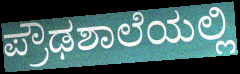
ಪ್ರೌಢಶಾಲೆಯಲ್ಲಿ